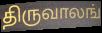
திருவாலங்